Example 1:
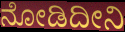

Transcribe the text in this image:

ನೋಡಿದೀನಿ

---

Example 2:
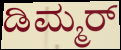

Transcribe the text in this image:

ಡಿಮ್ಮರ್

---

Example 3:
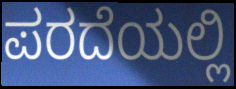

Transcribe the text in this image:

ಪರದೆಯಲ್ಲಿ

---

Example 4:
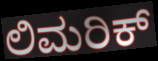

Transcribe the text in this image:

ಲಿಮರಿಕ್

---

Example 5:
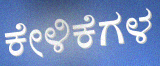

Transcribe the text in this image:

ಕೇಳಿಕೆಗಳ